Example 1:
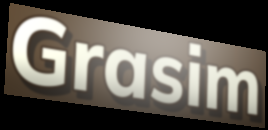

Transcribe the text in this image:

Grasim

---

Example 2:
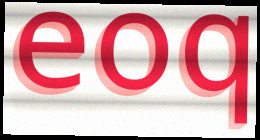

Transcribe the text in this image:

eoq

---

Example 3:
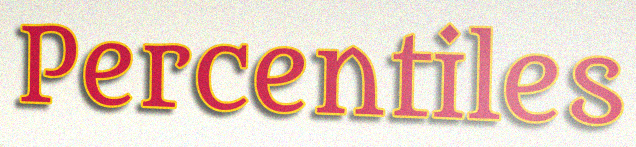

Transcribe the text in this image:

Percentiles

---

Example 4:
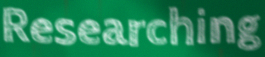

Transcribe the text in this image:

Researching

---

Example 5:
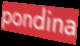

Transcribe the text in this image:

pondina